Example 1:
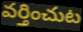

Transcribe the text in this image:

వర్తించుట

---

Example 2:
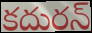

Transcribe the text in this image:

కదురన్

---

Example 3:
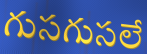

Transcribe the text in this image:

గుసగుసలే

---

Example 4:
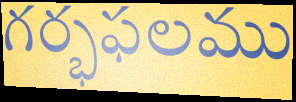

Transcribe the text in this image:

గర్భఫలము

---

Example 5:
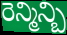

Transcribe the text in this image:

రెన్మిన్బి